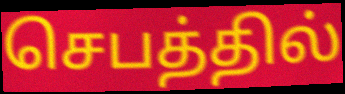
செபத்தில்